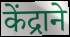
केंद्राने